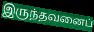
இருந்தவனைப்